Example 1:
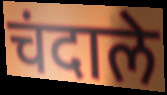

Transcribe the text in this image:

चंदाले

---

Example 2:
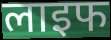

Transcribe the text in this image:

लाइफ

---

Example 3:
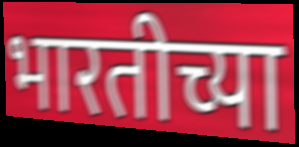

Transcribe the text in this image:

भारतीच्‍या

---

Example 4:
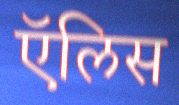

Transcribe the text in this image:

ऍलिस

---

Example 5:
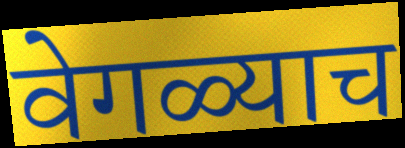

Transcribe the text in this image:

वेगळ्याच